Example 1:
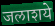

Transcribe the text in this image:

जलाशये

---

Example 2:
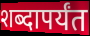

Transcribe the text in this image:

शब्दापर्यंत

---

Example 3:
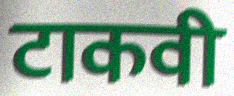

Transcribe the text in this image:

टाकवी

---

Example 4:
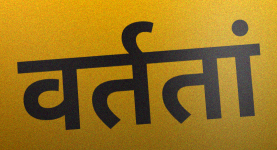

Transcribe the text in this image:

वर्ततां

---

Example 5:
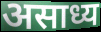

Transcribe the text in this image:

असाध्य